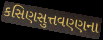
કસિણસુત્તવણ્ણના